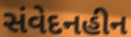
સંવેદનહીન